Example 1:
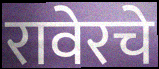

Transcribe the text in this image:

रावेरचे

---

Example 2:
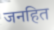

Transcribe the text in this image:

जनहित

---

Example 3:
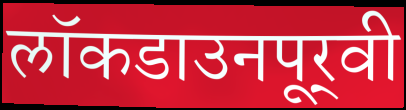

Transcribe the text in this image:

लॉकडाउनपूर्वी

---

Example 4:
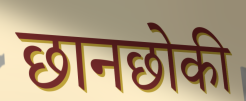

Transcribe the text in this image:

छानछोकी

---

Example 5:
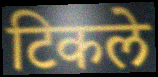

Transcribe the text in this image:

टिकले